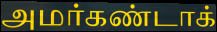
அமர்கண்டாக்